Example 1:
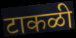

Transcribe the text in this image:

टाकळी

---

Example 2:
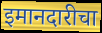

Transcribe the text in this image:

इमानदारीचा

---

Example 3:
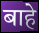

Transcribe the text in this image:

बाहे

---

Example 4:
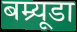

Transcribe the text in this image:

बम्र्यूडा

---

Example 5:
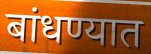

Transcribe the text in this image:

बांधण्यात